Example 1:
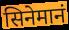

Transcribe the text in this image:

सिनेमानं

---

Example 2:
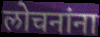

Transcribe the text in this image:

लोचनांना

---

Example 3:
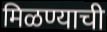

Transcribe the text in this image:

मिळण्याची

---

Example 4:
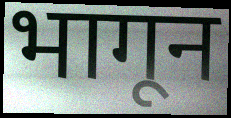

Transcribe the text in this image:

भागून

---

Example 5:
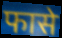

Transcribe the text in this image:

फासे